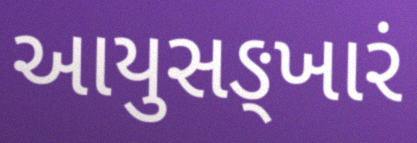
આયુસઙ્ખારં